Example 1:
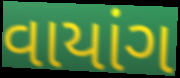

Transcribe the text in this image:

વાયાંગ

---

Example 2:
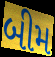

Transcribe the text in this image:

બીમ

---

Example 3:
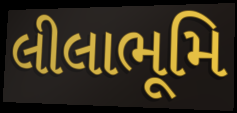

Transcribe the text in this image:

લીલાભૂમિ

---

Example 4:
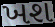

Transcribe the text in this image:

ખશ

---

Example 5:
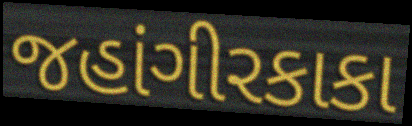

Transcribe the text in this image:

જહાંગીરકાકા